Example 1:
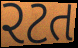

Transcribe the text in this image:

રટત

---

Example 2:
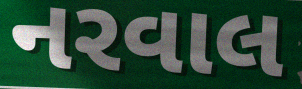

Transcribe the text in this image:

નરવાલ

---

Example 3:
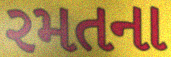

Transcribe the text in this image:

રમતના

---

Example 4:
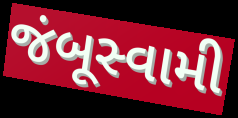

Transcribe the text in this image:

જંબૂસ્વામી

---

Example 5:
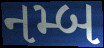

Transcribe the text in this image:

નમ્બ